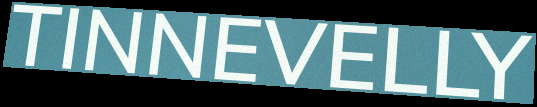
TINNEVELLY